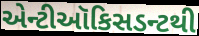
એન્ટીઑકિસડન્ટથી